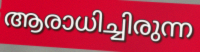
ആരാധിച്ചിരുന്ന